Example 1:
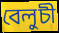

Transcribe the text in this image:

বেলুচী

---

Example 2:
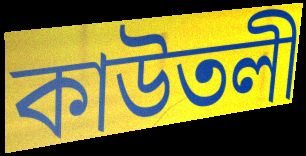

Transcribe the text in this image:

কাউতলী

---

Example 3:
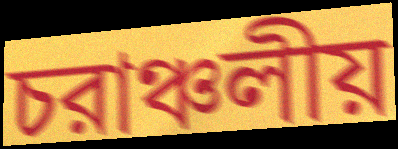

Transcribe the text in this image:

চরাঞ্চলীয়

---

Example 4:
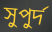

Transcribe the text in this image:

সুপুর্দ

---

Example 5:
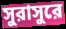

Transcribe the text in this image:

সুরাসুরে